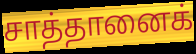
சாத்தானைக்